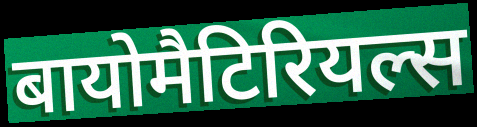
बायोमैटिरियल्स